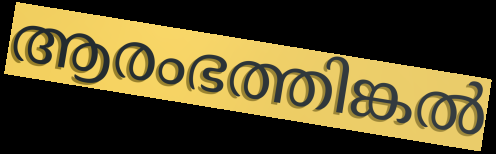
ആരംഭത്തിങ്കൽ